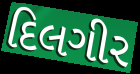
દિલગીર